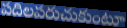
పదిలపరుచుకుంటూ